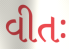
વીતઃ